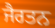
ਜੈਰਤਨ